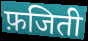
फ़जिती